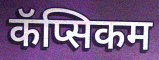
कॅप्सिकम